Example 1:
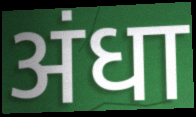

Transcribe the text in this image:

अंधा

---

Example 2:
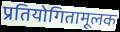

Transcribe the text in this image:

प्रतियोगितामूलक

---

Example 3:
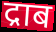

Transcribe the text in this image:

द्राब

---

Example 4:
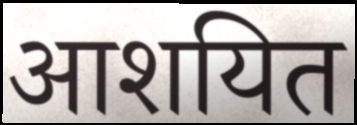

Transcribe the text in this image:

आशयित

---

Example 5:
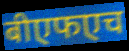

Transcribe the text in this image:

बीएफएच